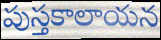
పుస్తకాలాయన